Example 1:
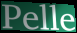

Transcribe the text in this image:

Pelle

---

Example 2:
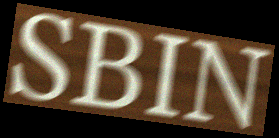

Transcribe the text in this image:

SBIN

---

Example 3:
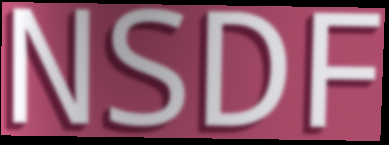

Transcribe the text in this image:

NSDF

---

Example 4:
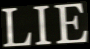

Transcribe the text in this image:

LIE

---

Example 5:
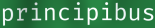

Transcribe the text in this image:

principibus